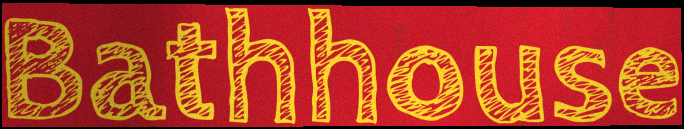
Bathhouse